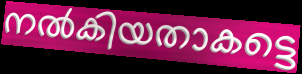
നൽകിയതാകട്ടെ